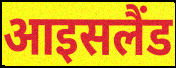
आइसलैंड